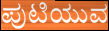
ಪುಟಿಯುವ